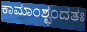
ಕಾಮಾಂಶ್ಛಂದತಃ